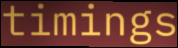
timings